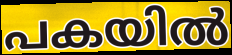
പകയിൽ